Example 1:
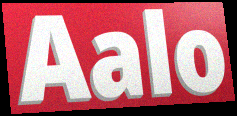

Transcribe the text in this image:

Aalo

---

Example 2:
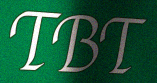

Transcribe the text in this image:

TBT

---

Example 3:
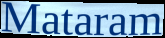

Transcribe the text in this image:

Mataram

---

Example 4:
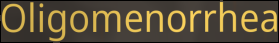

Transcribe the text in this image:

Oligomenorrhea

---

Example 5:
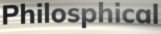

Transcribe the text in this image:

Philosphical